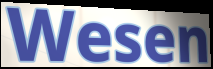
Wesen